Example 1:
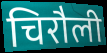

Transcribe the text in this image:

चिरौली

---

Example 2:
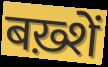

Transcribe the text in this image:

बख़्शें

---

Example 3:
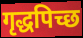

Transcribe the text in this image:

गृद्धपिच्छ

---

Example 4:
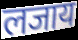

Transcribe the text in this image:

लजाय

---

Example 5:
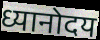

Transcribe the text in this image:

ध्यानोदय